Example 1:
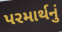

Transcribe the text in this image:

પરમાર્થનું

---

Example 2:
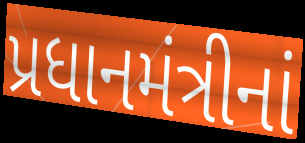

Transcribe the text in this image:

પ્રધાનમંત્રીનાં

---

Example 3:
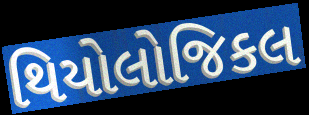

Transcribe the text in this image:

થિયોલોજિકલ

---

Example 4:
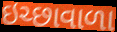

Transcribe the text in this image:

ઇચ્છાવાળા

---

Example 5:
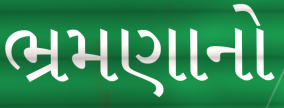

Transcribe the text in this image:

ભ્રમણાનો